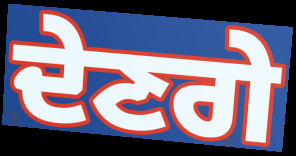
ਦੇਣਗੇ